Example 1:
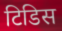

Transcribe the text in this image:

टिडिस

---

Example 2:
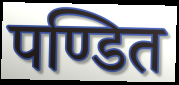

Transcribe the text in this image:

पण्डित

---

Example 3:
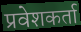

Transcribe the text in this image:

प्रवेशकर्ता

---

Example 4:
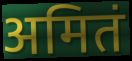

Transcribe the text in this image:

अमितं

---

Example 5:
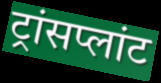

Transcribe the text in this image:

ट्रांसप्लांट